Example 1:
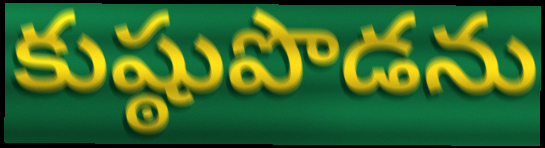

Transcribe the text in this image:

కుష్ఠుపొడను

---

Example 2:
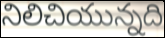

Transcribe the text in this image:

నిలిచియున్నది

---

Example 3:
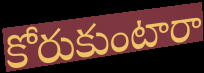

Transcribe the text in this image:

కోరుకుంటారా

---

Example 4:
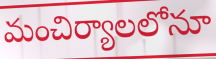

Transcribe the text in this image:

మంచిర్యాలలోనూ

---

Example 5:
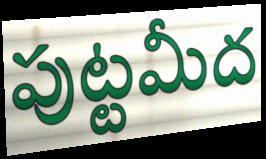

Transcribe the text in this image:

పుట్టమీద